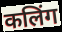
कलिंग